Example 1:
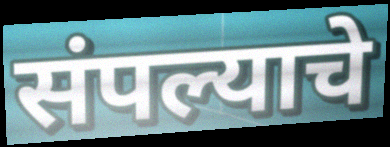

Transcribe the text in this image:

संपल्याचे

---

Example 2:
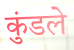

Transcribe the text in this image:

कुंडले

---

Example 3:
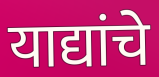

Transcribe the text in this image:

याद्यांचे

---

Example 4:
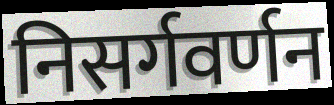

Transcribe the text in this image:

निसर्गवर्णन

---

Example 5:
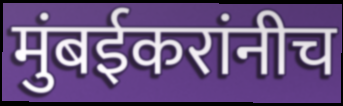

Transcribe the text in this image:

मुंबईकरांनीच